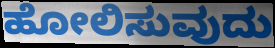
ಹೋಲಿಸುವುದು